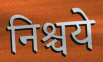
निश्चये